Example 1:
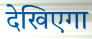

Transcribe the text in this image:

देखिएगा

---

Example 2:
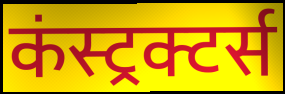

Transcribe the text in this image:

कंस्ट्रक्टर्स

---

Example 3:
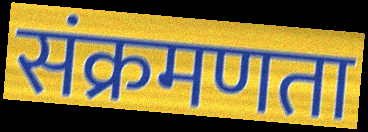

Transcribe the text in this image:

संक्रमणता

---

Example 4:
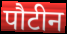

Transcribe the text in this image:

पौटीन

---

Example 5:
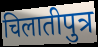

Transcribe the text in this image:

चिलातीपुत्र